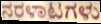
ನರಳಾಟಗಳು